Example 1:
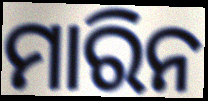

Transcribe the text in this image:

ମାରିନ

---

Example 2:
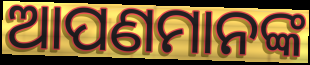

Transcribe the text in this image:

ଆପଣମାନଙ୍କ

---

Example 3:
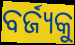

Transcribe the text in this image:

ବର୍ଜ୍ୟକୁ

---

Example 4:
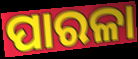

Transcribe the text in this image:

ପାରଳା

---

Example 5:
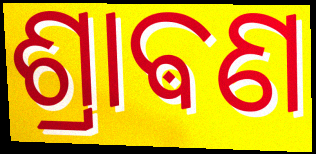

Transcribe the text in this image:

ଶ୍ରାଵଣ